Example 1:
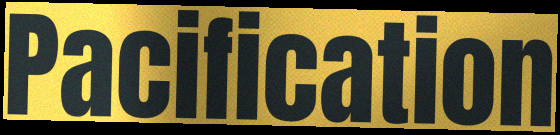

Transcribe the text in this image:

Pacification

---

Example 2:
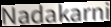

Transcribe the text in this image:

Nadakarni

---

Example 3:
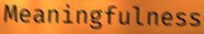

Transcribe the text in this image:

Meaningfulness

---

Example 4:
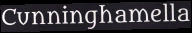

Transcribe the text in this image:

Cunninghamella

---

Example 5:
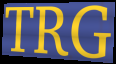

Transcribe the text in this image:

TRG